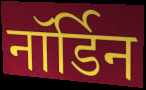
नॉर्डिन